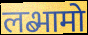
लब्भामो